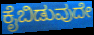
ಕೈಬಿಡುವುದೇ